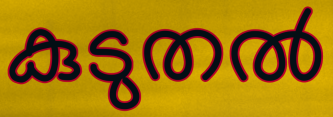
കുടുതൽ